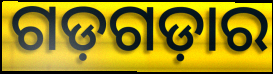
ଗଡ଼ଗଡ଼ାର